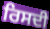
ਰਿਸਦੀ